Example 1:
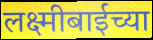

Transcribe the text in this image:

लक्ष्मीबाईच्या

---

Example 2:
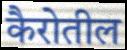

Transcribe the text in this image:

कैरोतील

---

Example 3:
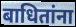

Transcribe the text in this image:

बाधितांना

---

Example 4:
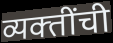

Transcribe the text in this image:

व्यक्‍तींची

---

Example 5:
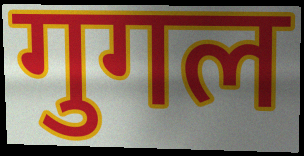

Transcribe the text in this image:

गुगल